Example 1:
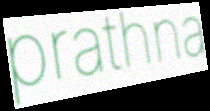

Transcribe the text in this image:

prathna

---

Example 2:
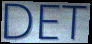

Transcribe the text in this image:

DET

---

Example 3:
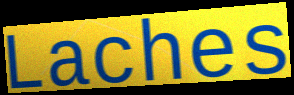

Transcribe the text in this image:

Laches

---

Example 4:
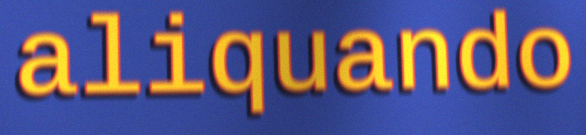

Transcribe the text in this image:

aliquando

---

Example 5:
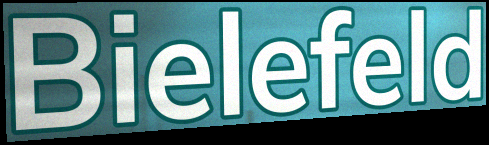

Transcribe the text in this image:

Bielefeld